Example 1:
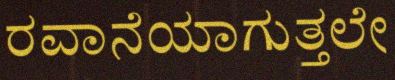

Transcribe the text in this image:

ರವಾನೆಯಾಗುತ್ತಲೇ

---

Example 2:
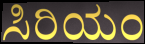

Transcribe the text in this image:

ಸಿರಿಯಂ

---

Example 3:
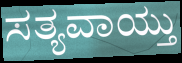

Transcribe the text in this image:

ಸತ್ಯವಾಯ್ತು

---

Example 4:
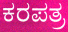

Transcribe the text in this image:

ಕರಪತ್ರ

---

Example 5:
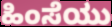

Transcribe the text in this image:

ಹಿಂಸೆಯು